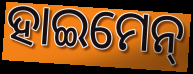
ହାଇମେନ୍